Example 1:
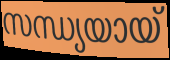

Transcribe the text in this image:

സന്ധ്യയായ്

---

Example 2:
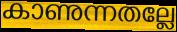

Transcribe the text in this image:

കാണുന്നതല്ലേ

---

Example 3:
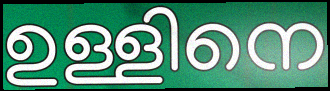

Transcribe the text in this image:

ഉള്ളിനെ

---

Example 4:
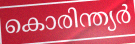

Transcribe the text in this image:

കൊരിന്ത്യർ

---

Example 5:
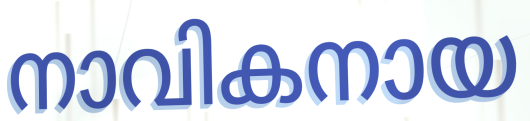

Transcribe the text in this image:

നാവികനായ